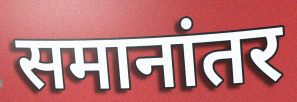
समानांतर